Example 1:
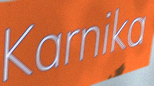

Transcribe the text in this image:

Karnika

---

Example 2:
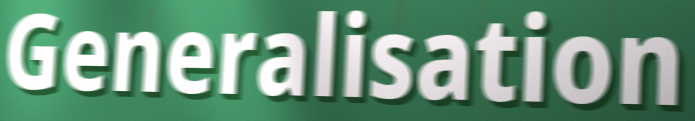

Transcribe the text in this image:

Generalisation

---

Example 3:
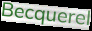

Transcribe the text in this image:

Becquerel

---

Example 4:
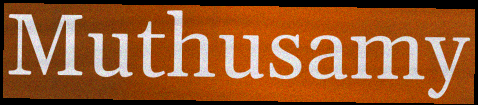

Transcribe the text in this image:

Muthusamy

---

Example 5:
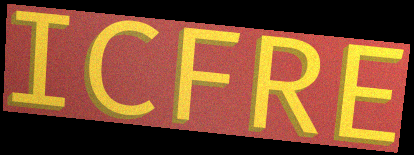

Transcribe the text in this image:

ICFRE